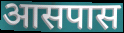
आसपास